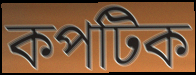
কপটিক